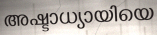
അഷ്ടാധ്യായിയെ